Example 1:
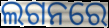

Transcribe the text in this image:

ଲଗନରେ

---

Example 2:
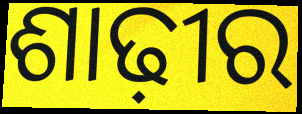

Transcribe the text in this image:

ଶାଢ଼ୀର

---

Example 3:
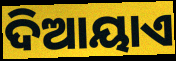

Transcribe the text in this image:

ଦିଆୟାଏ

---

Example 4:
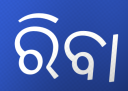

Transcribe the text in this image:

ରିବା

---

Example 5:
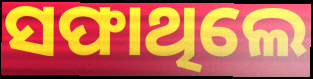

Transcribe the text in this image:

ସଫାଥିଲେ